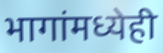
भागांमध्येही